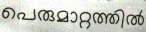
പെരുമാറ്റത്തിൽ